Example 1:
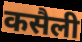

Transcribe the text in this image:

कसैली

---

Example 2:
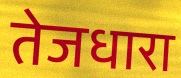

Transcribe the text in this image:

तेजधारा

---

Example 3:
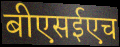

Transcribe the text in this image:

बीएसईएच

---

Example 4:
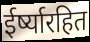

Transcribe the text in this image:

ईर्ष्यारहित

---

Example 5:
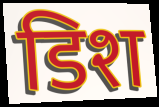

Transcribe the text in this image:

डिश